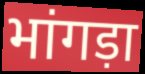
भांगड़ा